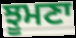
ਝੂਮਣਾ